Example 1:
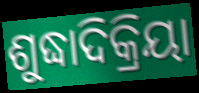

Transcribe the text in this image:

ଶୁଦ୍ଧାଦିକ୍ରିୟା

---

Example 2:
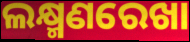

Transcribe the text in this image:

ଲକ୍ଷ୍ମଣରେଖା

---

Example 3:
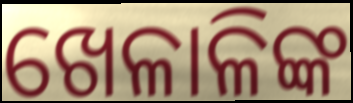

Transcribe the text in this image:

ଖେଳାଳିଙ୍କ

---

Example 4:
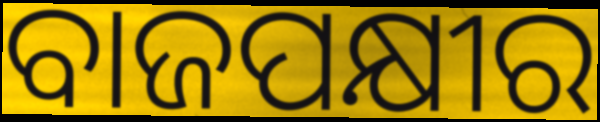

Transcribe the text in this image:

ବାଜପକ୍ଷୀର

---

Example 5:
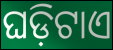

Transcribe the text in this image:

ଘଡ଼ିଟାଏ